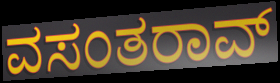
ವಸಂತರಾವ್